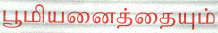
பூமியனைத்தையும்